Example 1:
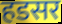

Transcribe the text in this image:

हडसर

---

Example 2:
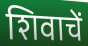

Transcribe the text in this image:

शिवाचें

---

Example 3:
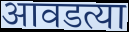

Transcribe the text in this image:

आवडत्या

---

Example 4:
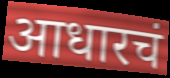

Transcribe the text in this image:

आधारचं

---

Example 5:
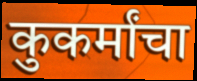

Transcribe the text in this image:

कुकर्मांचा